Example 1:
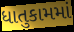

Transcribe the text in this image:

ધાતુકામમાં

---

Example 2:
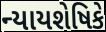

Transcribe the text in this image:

ન્યાયશેષિકે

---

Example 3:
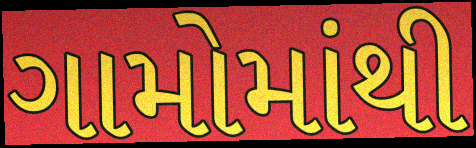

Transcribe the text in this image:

ગામોમાંથી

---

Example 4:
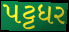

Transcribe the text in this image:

પટ્ટધર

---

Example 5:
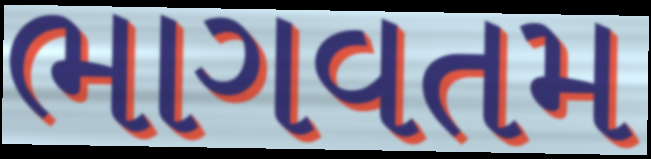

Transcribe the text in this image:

ભાગવતમ